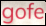
gofe